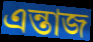
এন্তাজ